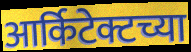
आर्किटेक्टच्या